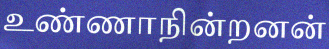
உண்ணாநின்றனன்